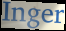
Inger